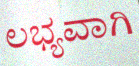
ಲಭ್ಯವಾಗಿ